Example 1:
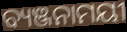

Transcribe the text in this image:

ବ୍ୟଞ୍ଜନାମୟୀ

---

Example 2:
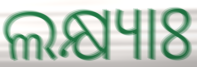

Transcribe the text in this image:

ଲକ୍ଷ୍ୟାଃ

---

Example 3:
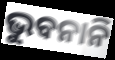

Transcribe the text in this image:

ଭୁବନାନି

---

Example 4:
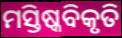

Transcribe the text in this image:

ମସ୍ତିଷ୍କବିକୃତି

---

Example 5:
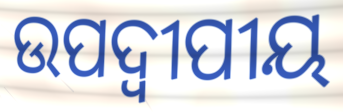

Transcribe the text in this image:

ଉପଦ୍ଵୀପୀୟ